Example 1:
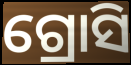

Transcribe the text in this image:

ଗ୍ରୋସି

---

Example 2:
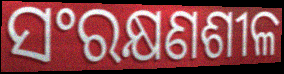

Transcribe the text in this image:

ସଂରକ୍ଷଣଶୀଳ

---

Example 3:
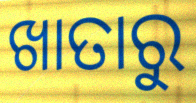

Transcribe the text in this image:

ଖାତାରୁ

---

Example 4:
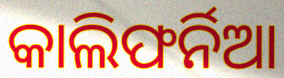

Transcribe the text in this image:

କାଲିଫର୍ନିଆ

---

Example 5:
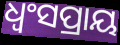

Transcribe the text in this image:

ଧ୍ୱଂସପ୍ରାୟ